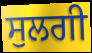
ਸੁਲਗੀ